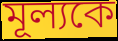
মূল্যকে